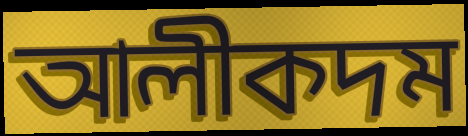
আলীকদম